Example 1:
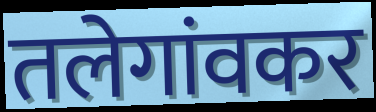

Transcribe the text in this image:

तलेगांवकर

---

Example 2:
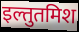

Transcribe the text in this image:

इल्तुतमिश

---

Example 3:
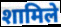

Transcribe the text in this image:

शामिले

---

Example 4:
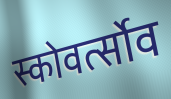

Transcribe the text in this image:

स्कोवर्त्सोव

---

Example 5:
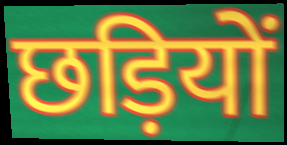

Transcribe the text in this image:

छड़ियों